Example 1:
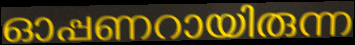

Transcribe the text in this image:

ഓപ്പണറായിരുന്ന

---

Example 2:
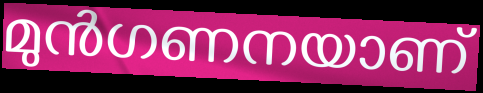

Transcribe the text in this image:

മുൻഗണനയാണ്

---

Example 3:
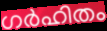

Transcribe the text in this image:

ഗർഹിതം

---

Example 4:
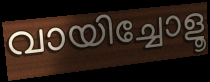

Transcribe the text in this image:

വായിച്ചോളൂ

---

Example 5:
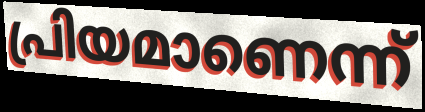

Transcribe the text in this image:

പ്രിയമാണെന്ന്